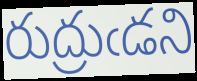
రుద్రుఁడని